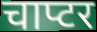
चाप्टर